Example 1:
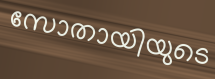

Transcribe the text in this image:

സോതായിയുടെ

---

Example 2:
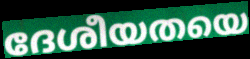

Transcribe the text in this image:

ദേശീയതയെ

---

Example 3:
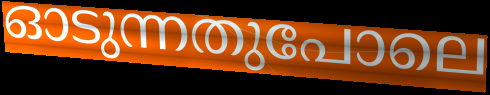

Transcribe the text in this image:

ഓടുന്നതുപോലെ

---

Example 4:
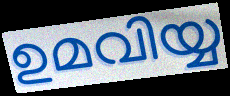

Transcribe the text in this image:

ഉമവിയ്യ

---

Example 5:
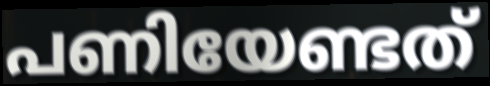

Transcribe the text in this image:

പണിയേണ്ടത്